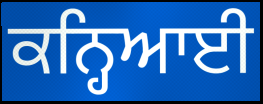
ਕਨ੍ਹਿਆਈ